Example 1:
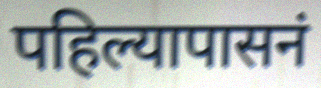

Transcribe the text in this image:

पहिल्यापासनं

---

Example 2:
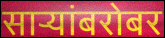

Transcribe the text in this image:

साऱ्यांबरोबर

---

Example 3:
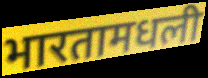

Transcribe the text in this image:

भारतामधली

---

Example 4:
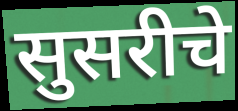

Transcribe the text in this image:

सुसरीचे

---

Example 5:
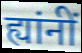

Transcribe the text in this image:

ह्यांनीं